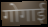
गोगाई